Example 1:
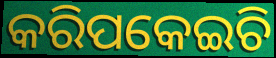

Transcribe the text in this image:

କରିପକେଇଚି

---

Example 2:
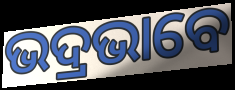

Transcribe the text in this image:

ଭଦ୍ରଭାବେ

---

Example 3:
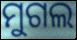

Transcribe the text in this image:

ମୁଗଲ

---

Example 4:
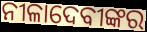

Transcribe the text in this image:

ନୀଳାଦେବୀଙ୍କର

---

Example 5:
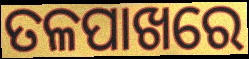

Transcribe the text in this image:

ତଳପାଖରେ